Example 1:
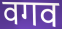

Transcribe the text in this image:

वगव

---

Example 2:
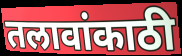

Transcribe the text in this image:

तलावांकाठी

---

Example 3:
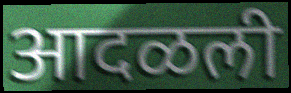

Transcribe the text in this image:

आदळली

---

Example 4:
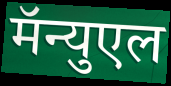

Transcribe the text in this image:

मॅन्युएल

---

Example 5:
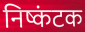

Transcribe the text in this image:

निष्कंटक